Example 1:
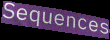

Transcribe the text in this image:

Sequences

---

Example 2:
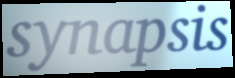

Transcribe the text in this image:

synapsis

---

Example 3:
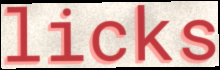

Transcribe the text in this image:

licks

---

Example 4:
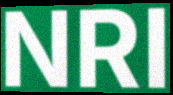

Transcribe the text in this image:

NRI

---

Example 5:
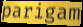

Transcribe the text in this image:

parigam